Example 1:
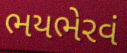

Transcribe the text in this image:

ભયભેરવં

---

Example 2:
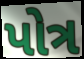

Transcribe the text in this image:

પોત્ર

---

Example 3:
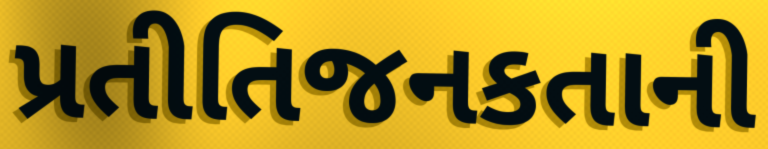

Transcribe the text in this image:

પ્રતીતિજનકતાની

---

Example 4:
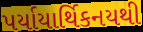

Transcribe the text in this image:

પર્યાયાર્થિકનયથી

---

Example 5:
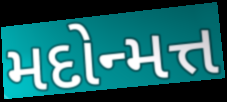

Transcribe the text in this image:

મદોન્મત્ત